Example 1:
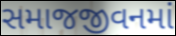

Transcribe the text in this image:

સમાજજીવનમાં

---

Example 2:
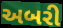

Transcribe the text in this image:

અબરી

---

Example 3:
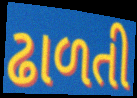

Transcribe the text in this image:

ઢાળતી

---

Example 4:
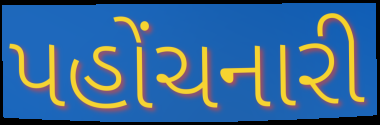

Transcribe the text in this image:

પહોંચનારી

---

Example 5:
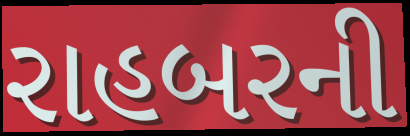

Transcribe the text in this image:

રાહબરની